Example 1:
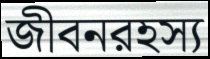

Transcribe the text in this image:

জীবনরহস্য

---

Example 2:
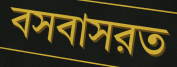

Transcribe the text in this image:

বসবাসরত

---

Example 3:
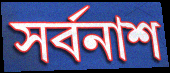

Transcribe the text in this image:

সর্বনাশ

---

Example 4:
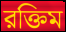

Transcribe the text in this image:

রক্তিম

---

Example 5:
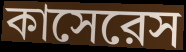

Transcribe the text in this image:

কাসেরেস